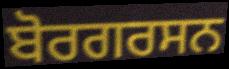
ਬੋਰਗਰਸਨ